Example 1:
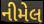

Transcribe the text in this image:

નીમેલ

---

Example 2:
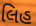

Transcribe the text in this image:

લિહ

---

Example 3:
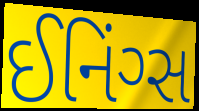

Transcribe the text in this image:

ઈનિંગ્સ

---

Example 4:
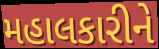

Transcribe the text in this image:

મહાલકારીને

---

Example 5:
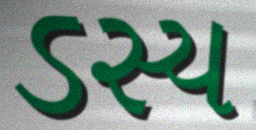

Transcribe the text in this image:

ઽસ્ય